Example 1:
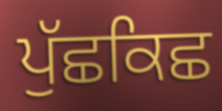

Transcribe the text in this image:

ਪੁੱਛਕਿਛ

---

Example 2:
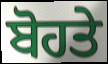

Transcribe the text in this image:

ਬੋਹਤੇ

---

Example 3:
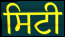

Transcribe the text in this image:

ਸਿਟੀ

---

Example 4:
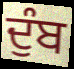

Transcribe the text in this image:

ਦੁੰਬ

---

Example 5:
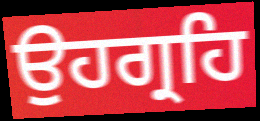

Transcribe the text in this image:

ਉਹਗ੍ਰਹਿ